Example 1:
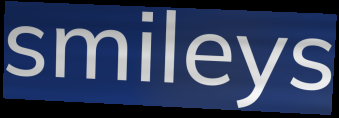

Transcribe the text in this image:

smileys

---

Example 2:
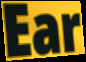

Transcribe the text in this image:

Ear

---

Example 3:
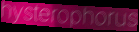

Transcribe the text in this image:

hysterophorus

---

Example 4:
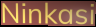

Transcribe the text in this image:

Ninkasi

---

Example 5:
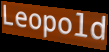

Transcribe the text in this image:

Leopold